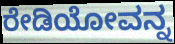
ರೇಡಿಯೋವನ್ನ